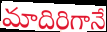
మాదిరిగానే